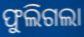
ଫୁଲିଗଲା